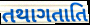
તથાગતાતિ